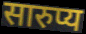
सारुप्य